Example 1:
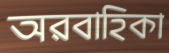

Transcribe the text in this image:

অৱবাহিকা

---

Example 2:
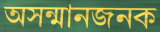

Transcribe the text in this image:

অসন্মানজনক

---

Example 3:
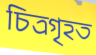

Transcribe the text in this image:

চিত্ৰগৃহত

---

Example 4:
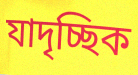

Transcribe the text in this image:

যাদৃচ্ছিক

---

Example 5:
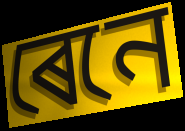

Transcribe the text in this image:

ৰেনে